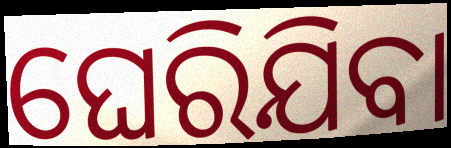
ଘେରିଯିବା